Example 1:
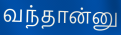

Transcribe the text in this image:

வந்தான்னு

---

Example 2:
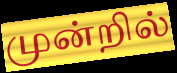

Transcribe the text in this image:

முன்றில்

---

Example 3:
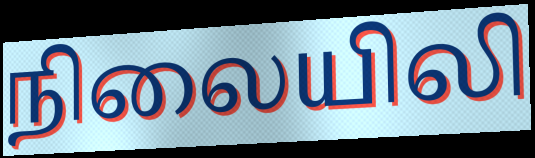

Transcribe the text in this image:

நிலையிலி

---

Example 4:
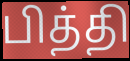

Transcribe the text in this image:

பித்தி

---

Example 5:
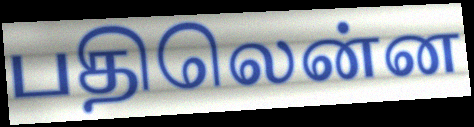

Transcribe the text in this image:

பதிலென்ன